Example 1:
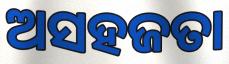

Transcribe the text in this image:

ଅସହଜତା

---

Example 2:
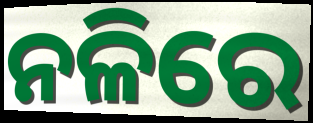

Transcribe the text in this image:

ନଳିରେ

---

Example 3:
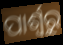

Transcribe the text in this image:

ପାର୍ଶ୍ଵରୁ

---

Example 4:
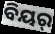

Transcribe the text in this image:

ବିୟର୍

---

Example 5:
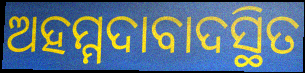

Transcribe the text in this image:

ଅହମ୍ମଦାବାଦସ୍ଥିତ